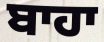
ਬਾਹਾ